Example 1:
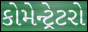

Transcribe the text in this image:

કોમેન્ટ્રેટરો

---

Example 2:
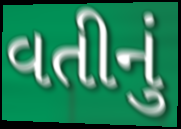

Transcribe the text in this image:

વતીનું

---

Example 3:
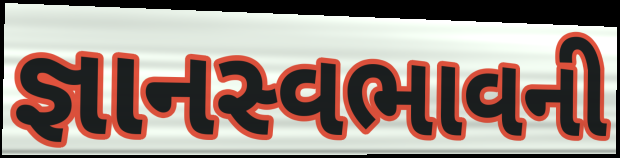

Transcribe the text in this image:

જ્ઞાનસ્વભાવની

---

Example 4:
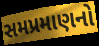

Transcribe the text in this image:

સમપ્રમાણનો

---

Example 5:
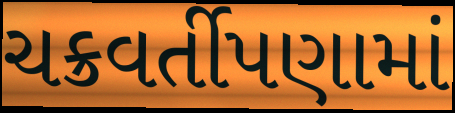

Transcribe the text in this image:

ચક્રવર્તીપણામાં